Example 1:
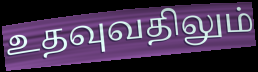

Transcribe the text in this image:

உதவுவதிலும்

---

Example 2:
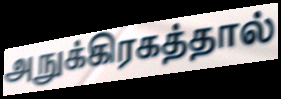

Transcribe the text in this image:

அநுக்கிரகத்தால்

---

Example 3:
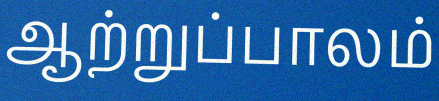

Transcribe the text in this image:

ஆற்றுப்பாலம்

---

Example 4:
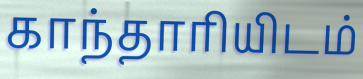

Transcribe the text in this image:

காந்தாரியிடம்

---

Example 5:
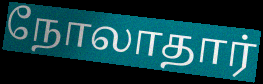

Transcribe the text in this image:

நோலாதார்